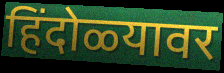
हिंदोळ्यावर